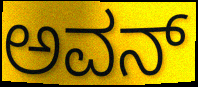
ಅವನ್